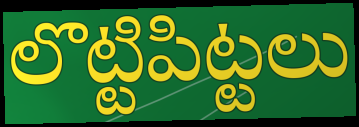
లొట్టిపిట్టలు